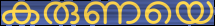
കരുണയെ